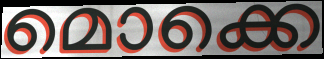
മൊക്കെ